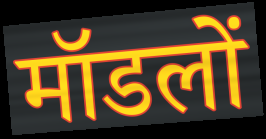
मॉडलों